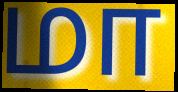
மா